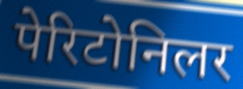
पेरिटोनिलर